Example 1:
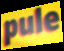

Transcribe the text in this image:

pule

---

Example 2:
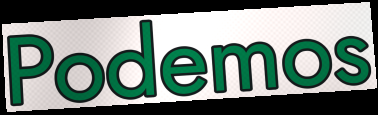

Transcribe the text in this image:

Podemos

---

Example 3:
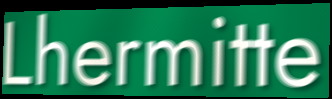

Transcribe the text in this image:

Lhermitte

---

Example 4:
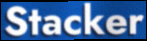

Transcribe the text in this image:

Stacker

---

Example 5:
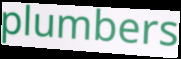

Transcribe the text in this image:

plumbers